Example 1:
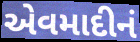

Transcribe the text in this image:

એવમાદીનં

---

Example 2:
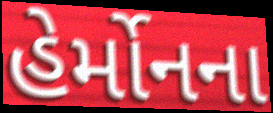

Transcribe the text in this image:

હેર્મોનના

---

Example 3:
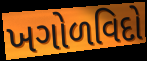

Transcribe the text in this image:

ખગોળવિદો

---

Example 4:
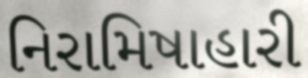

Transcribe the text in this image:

નિરામિષાહારી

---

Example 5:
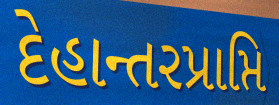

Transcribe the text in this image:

દેહાન્તરપ્રાપ્તિ